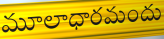
మూలాధారమందు